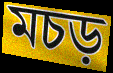
মচড়